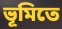
ভূমিতে